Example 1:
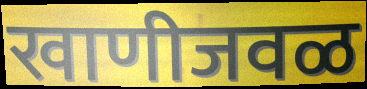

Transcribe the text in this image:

खाणीजवळ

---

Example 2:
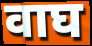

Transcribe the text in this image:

वाघ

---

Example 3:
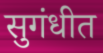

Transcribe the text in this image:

सुगंधीत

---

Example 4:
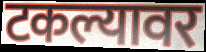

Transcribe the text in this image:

टकल्यावर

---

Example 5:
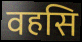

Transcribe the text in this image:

वहसि